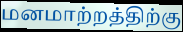
மனமாற்றத்திற்கு